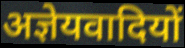
अज्ञेयवादियों